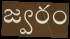
జ్వరం